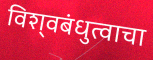
विश्वबंधुत्वाचा